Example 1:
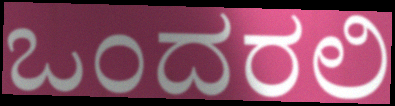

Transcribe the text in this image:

ಒಂದರಲಿ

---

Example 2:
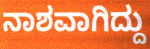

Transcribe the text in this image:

ನಾಶವಾಗಿದ್ದು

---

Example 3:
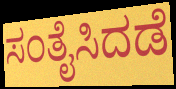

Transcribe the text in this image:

ಸಂತೈಸಿದಡೆ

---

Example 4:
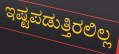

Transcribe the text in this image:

ಇಷ್ಟಪಡುತ್ತಿರಲಿಲ್ಲ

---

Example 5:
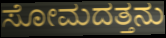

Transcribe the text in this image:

ಸೋಮದತ್ತನು